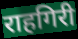
राहगिरी